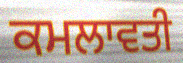
ਕਮਲਾਵਤੀ